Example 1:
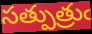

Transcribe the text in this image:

సత్పుత్రుఁ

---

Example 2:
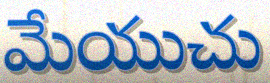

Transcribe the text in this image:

మేయుచు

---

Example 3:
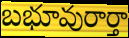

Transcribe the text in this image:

బభూవురార్తా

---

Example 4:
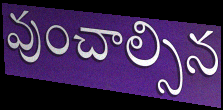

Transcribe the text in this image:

వుంచాల్సిన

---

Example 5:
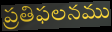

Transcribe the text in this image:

ప్రతిఫలనము